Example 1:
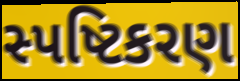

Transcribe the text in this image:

સ્પષ્ટિકરણ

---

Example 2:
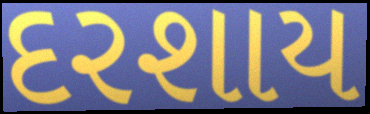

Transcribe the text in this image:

દરશાય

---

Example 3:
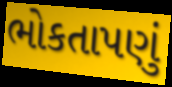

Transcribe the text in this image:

ભોકતાપણું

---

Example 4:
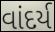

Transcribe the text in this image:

વાંદર્ય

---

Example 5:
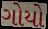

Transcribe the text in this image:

ગોયો